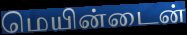
மெயின்டைன்